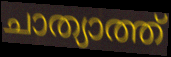
ചാത്യാത്ത്